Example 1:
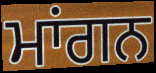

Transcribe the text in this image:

ਮਾਂਗਨ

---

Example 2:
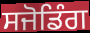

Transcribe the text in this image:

ਸਜੋਡਿੰਗ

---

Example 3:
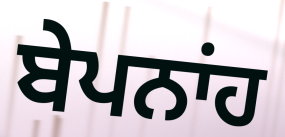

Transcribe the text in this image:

ਬੇਪਨਾਂਹ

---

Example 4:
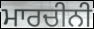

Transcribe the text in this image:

ਮਾਰਚੀਨੀ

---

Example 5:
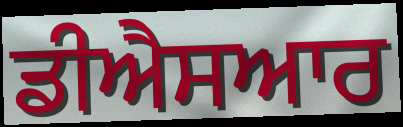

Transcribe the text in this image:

ਡੀਐਸਆਰ